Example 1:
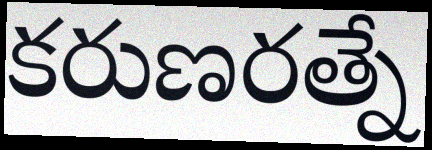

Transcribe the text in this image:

కరుణరత్నే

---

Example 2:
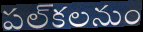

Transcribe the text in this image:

పల్‌కలనుం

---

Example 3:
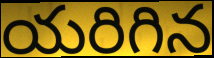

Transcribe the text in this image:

యరిగిన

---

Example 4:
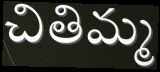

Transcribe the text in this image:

చితిమ్మ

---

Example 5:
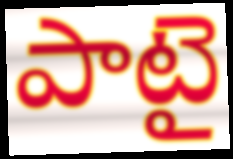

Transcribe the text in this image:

పాటై